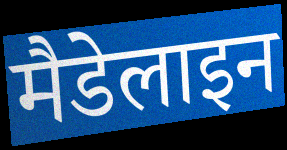
मैडेलाइन